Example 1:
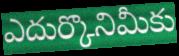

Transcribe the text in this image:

ఎదుర్కొనిమీకు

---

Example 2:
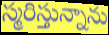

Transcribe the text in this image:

స్మరిస్తున్నాను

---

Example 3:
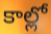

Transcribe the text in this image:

కాల్లో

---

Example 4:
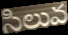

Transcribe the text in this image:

సిలువ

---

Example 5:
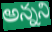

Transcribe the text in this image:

అన్నని